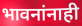
भावनांनाही